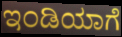
ಇಂಡಿಯಾಗೆ